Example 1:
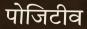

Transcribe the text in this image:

पोजिटीव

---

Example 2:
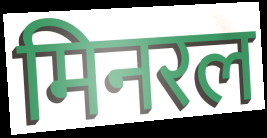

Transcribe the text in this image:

मिनरल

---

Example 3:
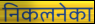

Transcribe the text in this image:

निकलनेका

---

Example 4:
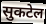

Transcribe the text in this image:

सुकटेल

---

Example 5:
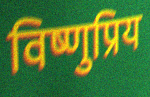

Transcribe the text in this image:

विष्णुप्रिय